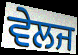
ਵੇਲਜ